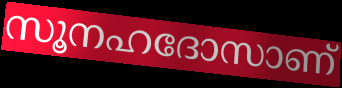
സൂനഹദോസാണ്